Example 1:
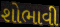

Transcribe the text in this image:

શોભાવી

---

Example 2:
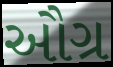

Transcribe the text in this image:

ઔગ્ર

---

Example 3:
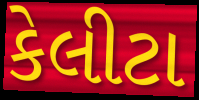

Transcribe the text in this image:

કેલીટા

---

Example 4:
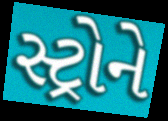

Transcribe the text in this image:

સ્ટ્રોને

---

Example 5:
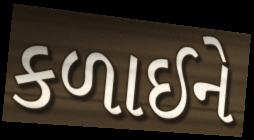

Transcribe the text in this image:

કળાઈને